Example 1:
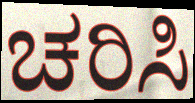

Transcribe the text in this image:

ಚರಿಸಿ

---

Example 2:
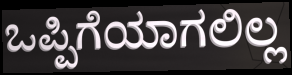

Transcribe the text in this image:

ಒಪ್ಪಿಗೆಯಾಗಲಿಲ್ಲ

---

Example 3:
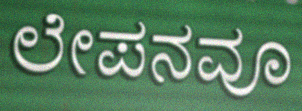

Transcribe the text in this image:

ಲೇಪನವೂ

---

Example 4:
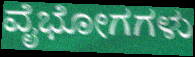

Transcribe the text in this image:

ವೈಭೋಗಗಳು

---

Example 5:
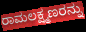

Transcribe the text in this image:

ರಾಮಲಕ್ಷ್ಮಣರನ್ನು